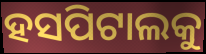
ହସପିଟାଲକୁ